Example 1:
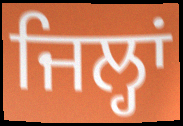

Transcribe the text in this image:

ਜਿਲ੍ਹਾਂ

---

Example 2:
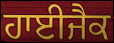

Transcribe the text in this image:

ਹਾਈਜੈਕ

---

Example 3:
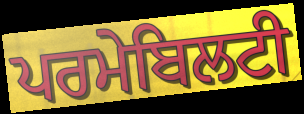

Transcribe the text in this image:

ਪਰਮੇਬਿਲਟੀ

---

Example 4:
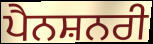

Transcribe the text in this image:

ਪੈਨਸ਼ਨਰੀ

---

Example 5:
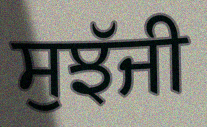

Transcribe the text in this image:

ਸੁਝੱਜੀ